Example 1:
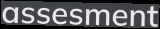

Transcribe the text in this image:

assesment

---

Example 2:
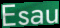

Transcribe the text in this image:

Esau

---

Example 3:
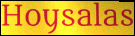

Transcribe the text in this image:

Hoysalas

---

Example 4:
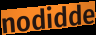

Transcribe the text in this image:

nodidde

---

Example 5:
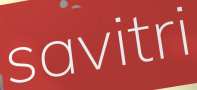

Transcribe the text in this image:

savitri